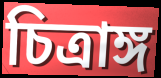
চিত্রাঙ্গ